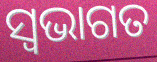
ସ୍ଵଭାଗତ